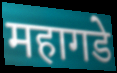
महागडे